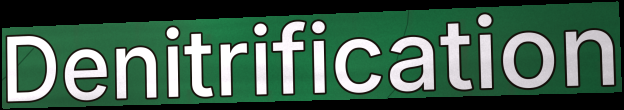
Denitrification